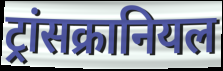
ट्रांसक्रानियल